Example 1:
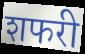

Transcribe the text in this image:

शफरी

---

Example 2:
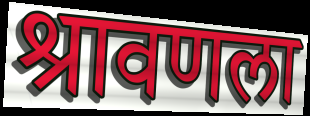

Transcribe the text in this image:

श्रावणला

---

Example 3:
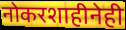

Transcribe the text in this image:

नोकरशाहीनेही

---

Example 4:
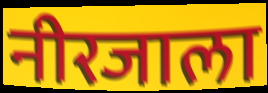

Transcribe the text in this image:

नीरजाला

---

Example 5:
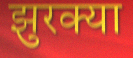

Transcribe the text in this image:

झुरक्या